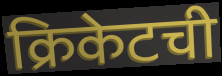
क्रिकेटची